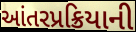
આંતરપ્રક્રિયાની